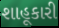
શાહૂકારી